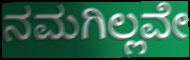
ನಮಗಿಲ್ಲವೇ